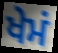
ਖੇਮਂ